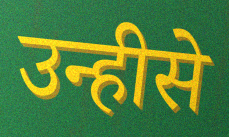
उन्हीसे